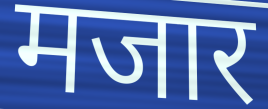
मजार